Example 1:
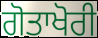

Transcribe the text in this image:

ਗੋਤਾਖੋਰੀ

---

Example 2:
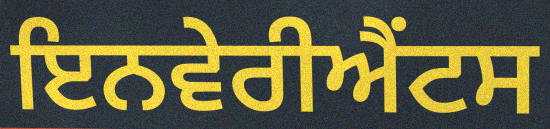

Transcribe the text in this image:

ਇਨਵੇਰੀਐਂਟਸ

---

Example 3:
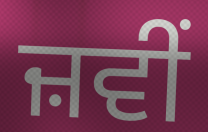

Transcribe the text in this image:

ਜ਼ਵੀਂ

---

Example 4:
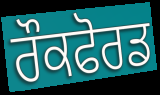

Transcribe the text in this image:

ਰੌਕਫੋਰਡ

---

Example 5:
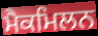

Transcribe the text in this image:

ਮੈਕਮਿਲਨ